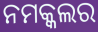
ନମକ୍କଲର